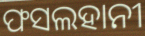
ଫସଲହାନୀ